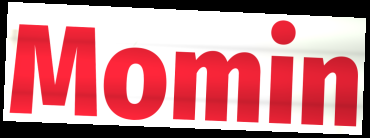
Momin